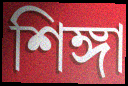
শিঙ্গা